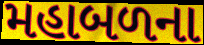
મહાબળના